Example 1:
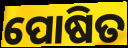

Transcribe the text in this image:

ପୋଷିତ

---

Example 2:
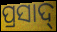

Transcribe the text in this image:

ପ୍ରସାଦ୍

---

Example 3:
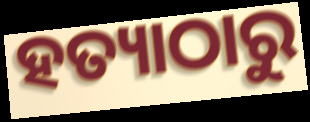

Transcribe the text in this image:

ହତ୍ୟାଠାରୁ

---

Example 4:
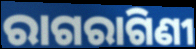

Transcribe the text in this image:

ରାଗରାଗିଣୀ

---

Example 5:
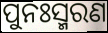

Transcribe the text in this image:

ପୁନଃସ୍ମରଣ